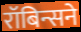
रॉबिन्सने